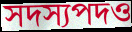
সদস্যপদও